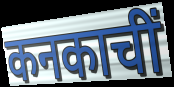
कनकाचीं